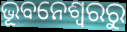
ଭୂବନେଶ୍ୱରରୁ